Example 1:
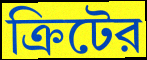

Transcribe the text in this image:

ক্রিটের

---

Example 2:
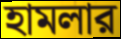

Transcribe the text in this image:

হামলার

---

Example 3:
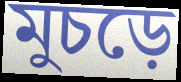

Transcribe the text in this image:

মুচড়ে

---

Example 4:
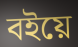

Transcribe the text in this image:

বইয়ে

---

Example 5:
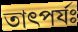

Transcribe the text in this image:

তাৎপর্যঃ